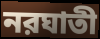
নরঘাতী